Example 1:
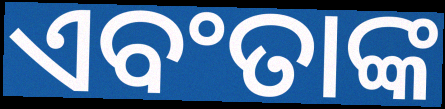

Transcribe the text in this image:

ଏବଂତାଙ୍କ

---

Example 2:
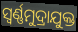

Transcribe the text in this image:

ସ୍ବର୍ଣ୍ଣମୁଦ୍ରାଯୁକ୍ତ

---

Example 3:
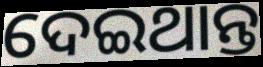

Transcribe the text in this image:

ଦେଇଥାନ୍ତ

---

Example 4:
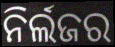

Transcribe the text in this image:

ନିର୍ଲଜର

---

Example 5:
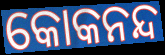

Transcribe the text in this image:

କୋକନନ୍ଦ